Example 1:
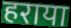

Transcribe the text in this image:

हराया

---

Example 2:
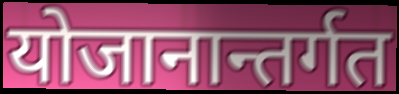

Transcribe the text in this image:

योजानान्तर्गत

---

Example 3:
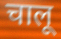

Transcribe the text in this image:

चालू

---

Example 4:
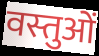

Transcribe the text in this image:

वस्‍तुओं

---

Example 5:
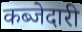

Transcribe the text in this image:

कब्जेदारी